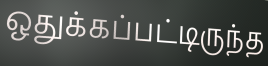
ஒதுக்கப்பட்டிருந்த